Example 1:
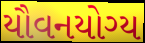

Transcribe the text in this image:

યૌવનયોગ્ય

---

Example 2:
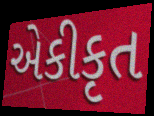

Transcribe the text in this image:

એકીકૃત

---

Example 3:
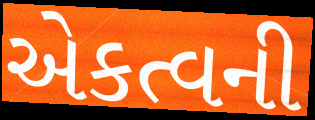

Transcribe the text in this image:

એકત્વની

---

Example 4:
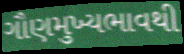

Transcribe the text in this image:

ગૌણમુખ્યભાવથી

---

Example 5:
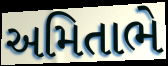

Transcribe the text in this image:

અમિતાભે